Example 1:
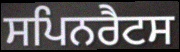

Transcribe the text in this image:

ਸਪਿਨਰੈਟਸ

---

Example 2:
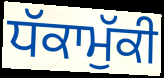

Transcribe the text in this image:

ਧੱਕਾਮੁੱਕੀ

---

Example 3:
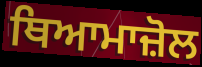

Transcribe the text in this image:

ਥਿਆਮਾਜ਼ੋਲ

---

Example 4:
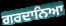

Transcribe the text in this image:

ਗਰਦਾਨਿਆ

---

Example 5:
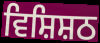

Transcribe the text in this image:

ਵਿਸ਼ਿਸ਼ਠ